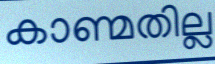
കാണ്മതില്ല